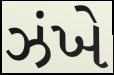
ઝંખે